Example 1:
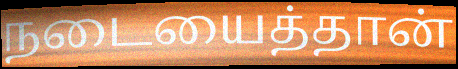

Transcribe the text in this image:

நடையைத்தான்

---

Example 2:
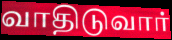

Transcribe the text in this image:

வாதிடுவார்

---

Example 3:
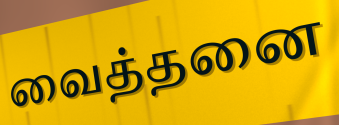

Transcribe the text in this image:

வைத்தனை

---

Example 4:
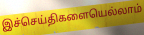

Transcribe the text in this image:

இச்செய்திகளையெல்லாம்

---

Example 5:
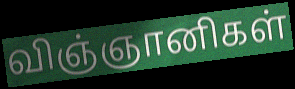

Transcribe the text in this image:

விஞ்ஞானிகள்